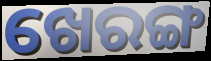
ଖେରଙ୍ଗ